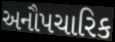
અનૌપચારિક